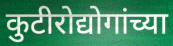
कुटीरोद्योगांच्या